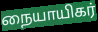
நையாயிகர்